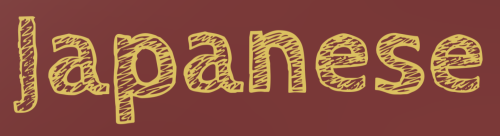
Japanese